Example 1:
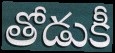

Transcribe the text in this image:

తోడుకీ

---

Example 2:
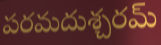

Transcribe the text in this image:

పరమదుశ్చరమ్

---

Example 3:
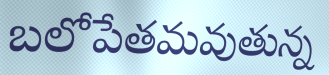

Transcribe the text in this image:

బలోపేతమవుతున్న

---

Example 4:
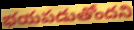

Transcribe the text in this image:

భయపడుతోందని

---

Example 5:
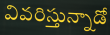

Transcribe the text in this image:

వివరిస్తున్నాడో